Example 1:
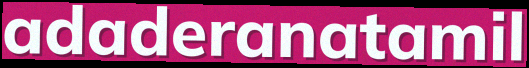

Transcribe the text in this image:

adaderanatamil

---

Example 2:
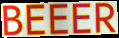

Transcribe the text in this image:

BEEER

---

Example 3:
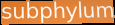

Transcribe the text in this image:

subphylum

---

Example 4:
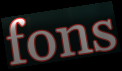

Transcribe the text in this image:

fons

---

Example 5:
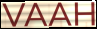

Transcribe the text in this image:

VAAH